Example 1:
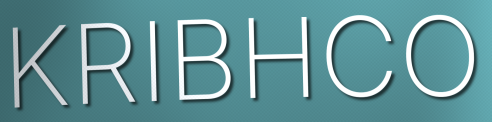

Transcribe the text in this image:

KRIBHCO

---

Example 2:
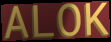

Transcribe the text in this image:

ALOK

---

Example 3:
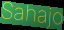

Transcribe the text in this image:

Sahajo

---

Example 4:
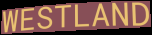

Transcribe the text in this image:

WESTLAND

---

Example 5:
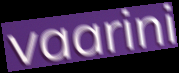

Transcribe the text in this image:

vaarini